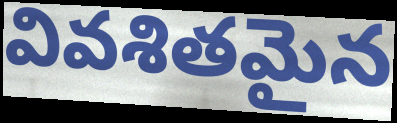
వివశితమైన